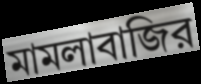
মামলাবাজির